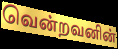
வென்றவனின்